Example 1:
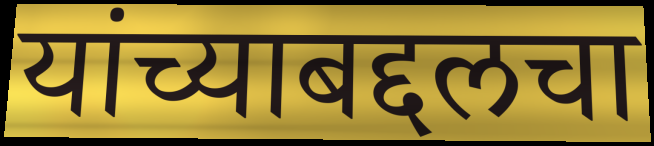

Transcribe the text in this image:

यांच्याबद्दलचा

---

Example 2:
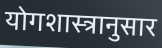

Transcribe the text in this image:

योगशास्त्रानुसार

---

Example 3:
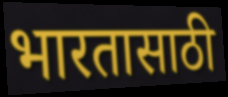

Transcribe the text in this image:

भारतासाठी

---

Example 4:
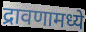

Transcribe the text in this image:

द्रावणामध्ये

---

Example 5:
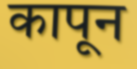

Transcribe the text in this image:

कापून